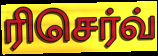
ரிசெர்வ்